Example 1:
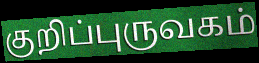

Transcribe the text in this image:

குறிப்புருவகம்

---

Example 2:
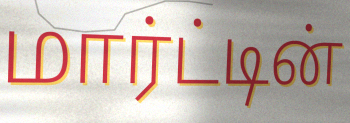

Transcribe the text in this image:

மார்ட்டின்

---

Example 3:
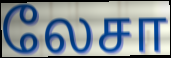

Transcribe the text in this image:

லேசா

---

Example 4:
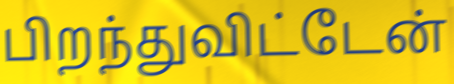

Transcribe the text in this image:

பிறந்துவிட்டேன்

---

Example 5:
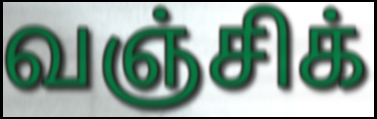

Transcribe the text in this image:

வஞ்சிக்